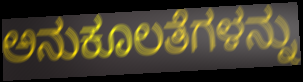
ಅನುಕೂಲತೆಗಳನ್ನು